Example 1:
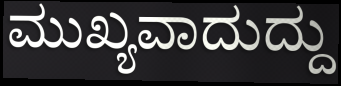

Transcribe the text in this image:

ಮುಖ್ಯವಾದುದ್ದು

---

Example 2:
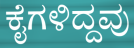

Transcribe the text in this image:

ಕೈಗಳಿದ್ದವು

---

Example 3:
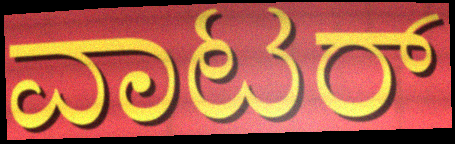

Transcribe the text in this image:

ವಾಟರ್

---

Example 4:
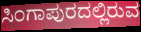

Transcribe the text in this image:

ಸಿಂಗಾಪುರದಲ್ಲಿರುವ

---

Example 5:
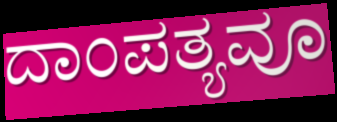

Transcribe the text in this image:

ದಾಂಪತ್ಯವೂ